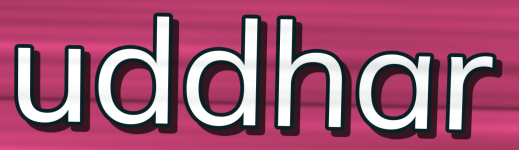
uddhar